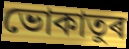
ভোকাতুৰ